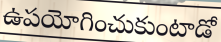
ఉపయోగించుకుంటాడో